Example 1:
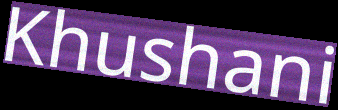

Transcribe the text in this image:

Khushani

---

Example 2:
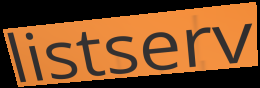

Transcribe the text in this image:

listserv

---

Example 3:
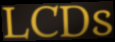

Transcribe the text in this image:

LCDs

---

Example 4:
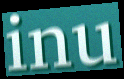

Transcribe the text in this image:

inu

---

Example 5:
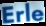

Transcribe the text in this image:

Erle